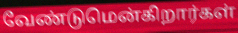
வேண்டுமென்கிறார்கள்